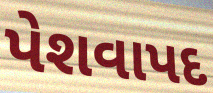
પેશવાપદ